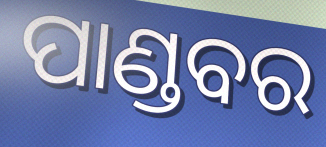
ପାଣ୍ଡବର